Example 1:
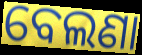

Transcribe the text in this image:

ବେଲଣା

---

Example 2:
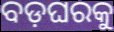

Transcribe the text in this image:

ବଡ଼ଘରକୁ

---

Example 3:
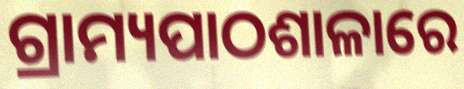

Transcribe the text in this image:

ଗ୍ରାମ୍ୟପାଠଶାଳାରେ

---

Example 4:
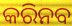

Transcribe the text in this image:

କରିନବ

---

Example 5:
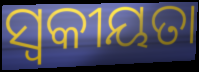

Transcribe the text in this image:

ସ୍ଵକୀୟତା